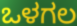
ಒಳಗಲ